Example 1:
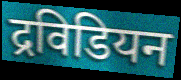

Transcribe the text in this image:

द्रविडियन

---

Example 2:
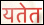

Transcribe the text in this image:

यतेत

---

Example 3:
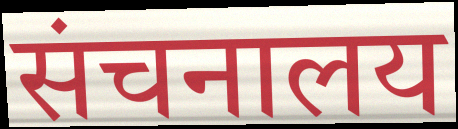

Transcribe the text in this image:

संचनालय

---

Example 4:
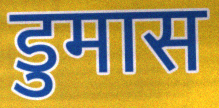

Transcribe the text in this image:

डुमास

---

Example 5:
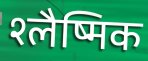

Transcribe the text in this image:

श्लैष्मिक